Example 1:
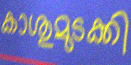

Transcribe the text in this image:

കാശുമുടക്കി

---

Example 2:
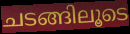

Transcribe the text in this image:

ചടങ്ങിലൂടെ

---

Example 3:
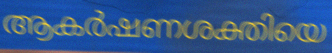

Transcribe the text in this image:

ആകർഷണശക്തിയെ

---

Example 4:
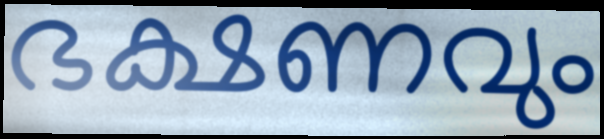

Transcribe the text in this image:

ഭക്ഷണവും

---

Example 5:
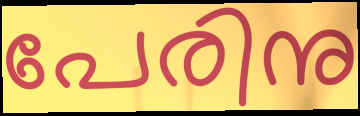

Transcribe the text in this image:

പേരിനു